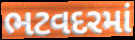
ભટવદરમાં